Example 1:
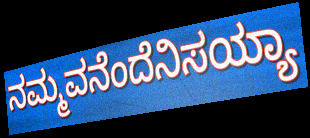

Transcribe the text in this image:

ನಮ್ಮವನೆಂದೆನಿಸಯ್ಯಾ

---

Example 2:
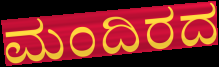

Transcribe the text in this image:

ಮಂದಿರದ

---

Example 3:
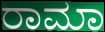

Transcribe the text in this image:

ರಾಮಾ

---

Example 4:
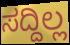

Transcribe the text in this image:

ಸದ್ದಿಲ್ಲ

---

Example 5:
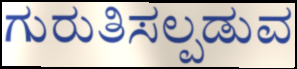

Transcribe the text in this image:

ಗುರುತಿಸಲ್ಪಡುವ